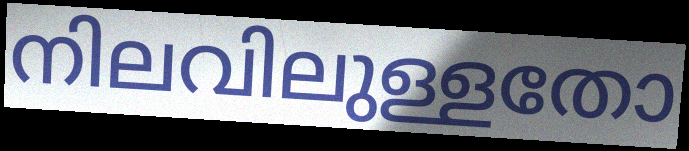
നിലവിലുള്ളതോ